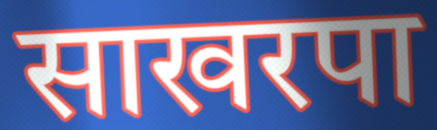
साखरपा